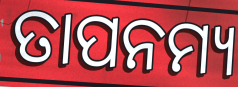
ତାପନମ୍ୟ